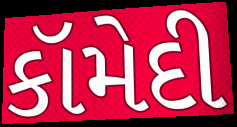
કૉમેદી